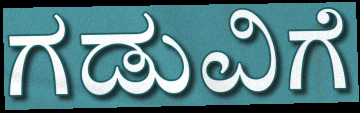
ಗಡುವಿಗೆ